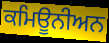
ਕਮਿਊਨੀਅਨ